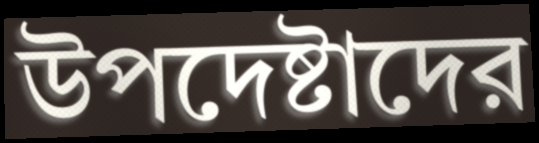
উপদেষ্টাদের